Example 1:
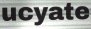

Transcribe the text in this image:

ucyate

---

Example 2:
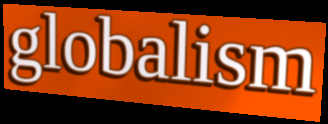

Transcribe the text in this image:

globalism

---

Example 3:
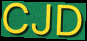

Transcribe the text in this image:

CJD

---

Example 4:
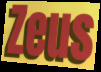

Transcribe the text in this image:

Zeus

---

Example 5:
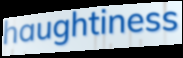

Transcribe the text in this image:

haughtiness